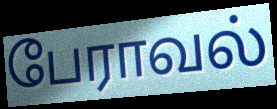
பேராவல்